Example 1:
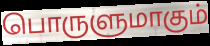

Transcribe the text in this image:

பொருளுமாகும்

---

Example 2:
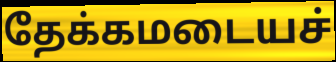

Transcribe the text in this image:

தேக்கமடையச்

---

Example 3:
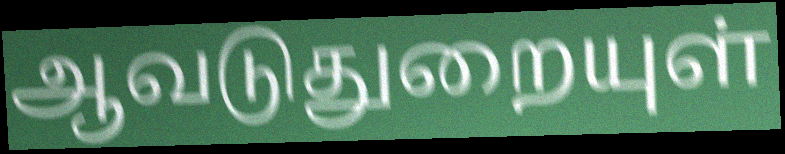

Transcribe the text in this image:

ஆவடுதுறையுள்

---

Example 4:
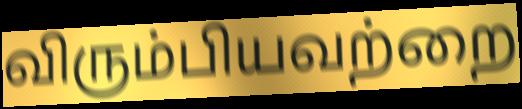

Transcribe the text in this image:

விரும்பியவற்றை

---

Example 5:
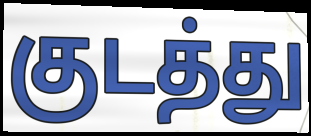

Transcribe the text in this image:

குடத்து